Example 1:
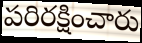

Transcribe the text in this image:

పరిరక్షించారు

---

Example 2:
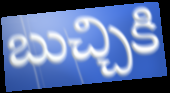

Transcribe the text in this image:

బుచ్చికి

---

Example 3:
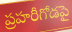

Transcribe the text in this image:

ప్రహరీగోడపై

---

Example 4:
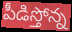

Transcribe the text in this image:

పీడిస్తోన్న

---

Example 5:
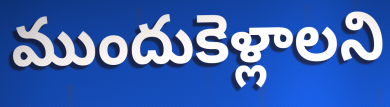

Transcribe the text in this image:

ముందుకెళ్లాలని